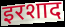
इरशाद